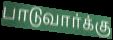
பாடுவார்க்கு